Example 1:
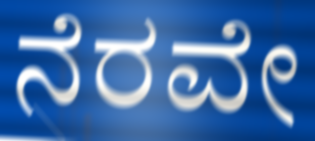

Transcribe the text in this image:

ನೆರವೇ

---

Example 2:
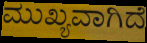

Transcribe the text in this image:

ಮುಖ್ಯವಾಗಿದೆ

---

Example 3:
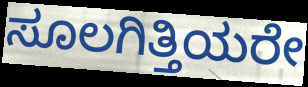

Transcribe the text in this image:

ಸೂಲಗಿತ್ತಿಯರೇ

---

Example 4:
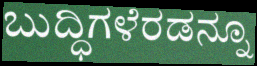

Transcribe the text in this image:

ಬುದ್ಧಿಗಳೆರಡನ್ನೂ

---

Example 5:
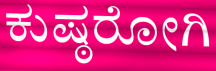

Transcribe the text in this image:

ಕುಷ್ಠರೋಗಿ